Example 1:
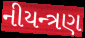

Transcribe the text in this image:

નીયન્ત્રણ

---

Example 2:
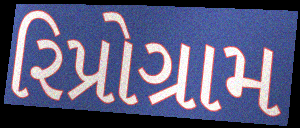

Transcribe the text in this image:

રિપ્રોગ્રામ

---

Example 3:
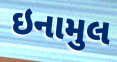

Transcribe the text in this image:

ઇનામુલ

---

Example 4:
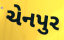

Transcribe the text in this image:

ચેનપુર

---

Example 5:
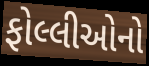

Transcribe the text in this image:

ફોલ્લીઓનો